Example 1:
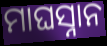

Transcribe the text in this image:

ମାଘସ୍ନାନ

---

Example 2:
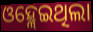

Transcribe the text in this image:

ଓହ୍ଲେଇଥିଲା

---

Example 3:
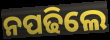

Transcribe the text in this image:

ନପଢିଲେ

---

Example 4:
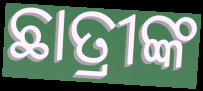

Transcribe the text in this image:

ଛାତ୍ରୀଙ୍କ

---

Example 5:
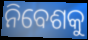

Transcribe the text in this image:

ନିବେଶକୁ